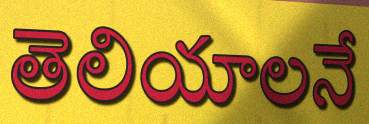
తెలియాలనే